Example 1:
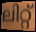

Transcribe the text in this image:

ലിറ്റ്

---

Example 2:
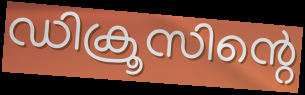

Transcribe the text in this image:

ഡിക്രൂസിന്റെ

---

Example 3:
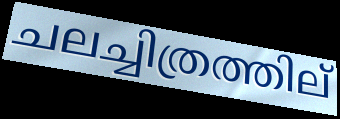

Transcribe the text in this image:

ചലച്ചിത്രത്തില്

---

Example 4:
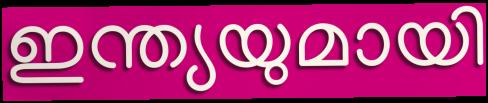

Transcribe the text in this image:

ഇന്ത്യയുമായി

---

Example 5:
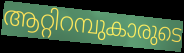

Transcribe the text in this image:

ആറ്റിറമ്പുകാരുടെ